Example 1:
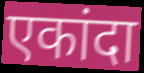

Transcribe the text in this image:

एकांदा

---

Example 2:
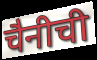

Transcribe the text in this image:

चैनीची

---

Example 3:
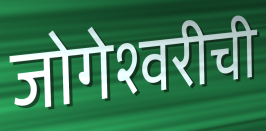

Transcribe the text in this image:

जोगेश्वरीची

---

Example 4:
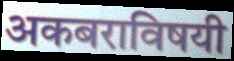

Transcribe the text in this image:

अकबराविषयी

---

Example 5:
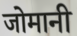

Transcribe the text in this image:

जोमानी